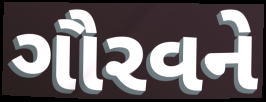
ગૌરવને